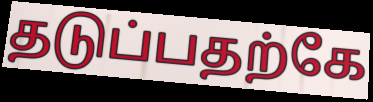
தடுப்பதற்கே